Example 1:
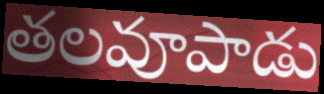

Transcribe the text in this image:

తలవూపాడు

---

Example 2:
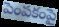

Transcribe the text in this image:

పెంపకంపై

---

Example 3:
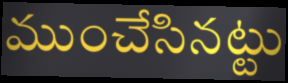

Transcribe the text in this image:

ముంచేసినట్టు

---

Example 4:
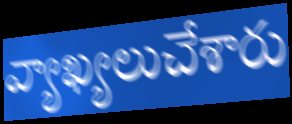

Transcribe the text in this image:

వ్యాఖ్యలుచేశారు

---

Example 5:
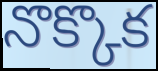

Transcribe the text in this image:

నొక్కొక